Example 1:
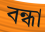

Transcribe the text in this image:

বন্ধা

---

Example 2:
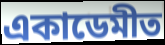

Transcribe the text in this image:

একাডেমীত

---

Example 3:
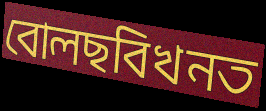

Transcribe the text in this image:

বোলছবিখনত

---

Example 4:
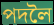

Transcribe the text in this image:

পদলৈ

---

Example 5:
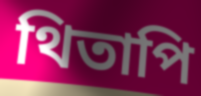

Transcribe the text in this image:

থিতাপি